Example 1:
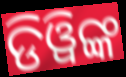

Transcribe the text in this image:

ଡିୱିଙ୍କ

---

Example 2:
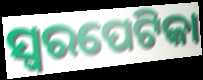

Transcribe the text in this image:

ସ୍ୱରପେଟିକା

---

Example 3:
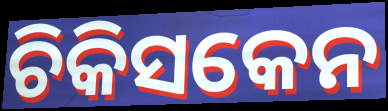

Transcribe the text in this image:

ଚିକିସକେନ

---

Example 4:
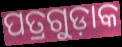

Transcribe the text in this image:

ପତ୍ରଗୁଡ଼ାକ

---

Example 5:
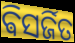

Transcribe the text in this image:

ଵିସର୍ଜିତ